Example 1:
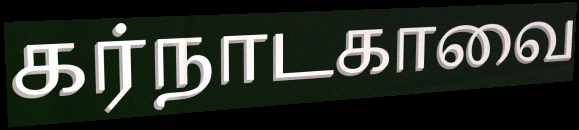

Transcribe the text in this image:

கர்நாடகாவை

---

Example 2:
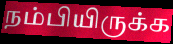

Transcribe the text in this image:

நம்பியிருக்க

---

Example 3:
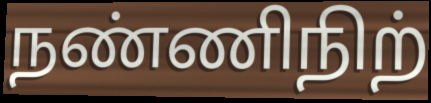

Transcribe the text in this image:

நண்ணிநிற்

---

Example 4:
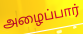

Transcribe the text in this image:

அழைப்பார்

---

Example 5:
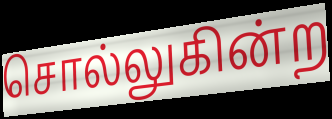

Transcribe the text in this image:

சொல்லுகின்ற